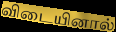
விடையினால்